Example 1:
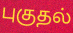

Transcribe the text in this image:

புகுதல்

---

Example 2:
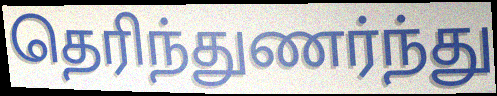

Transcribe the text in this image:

தெரிந்துணர்ந்து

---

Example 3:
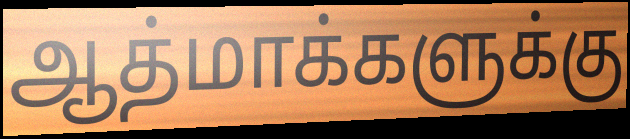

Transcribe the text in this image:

ஆத்மாக்களுக்கு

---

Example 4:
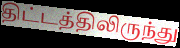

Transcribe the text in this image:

திட்டத்திலிருந்து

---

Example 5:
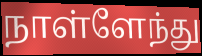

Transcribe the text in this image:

நாள்ளேந்து